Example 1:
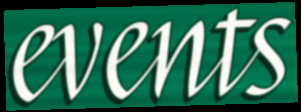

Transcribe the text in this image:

events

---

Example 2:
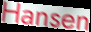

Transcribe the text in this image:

Hansen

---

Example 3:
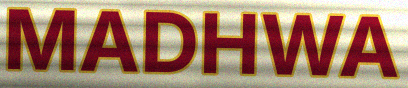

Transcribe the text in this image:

MADHWA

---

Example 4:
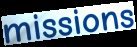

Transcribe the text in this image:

missions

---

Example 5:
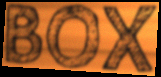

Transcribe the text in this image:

BOX